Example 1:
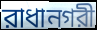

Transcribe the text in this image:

রাধানগরী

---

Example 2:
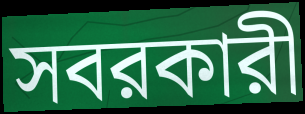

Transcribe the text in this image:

সবরকারী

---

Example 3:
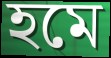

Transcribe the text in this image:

হমে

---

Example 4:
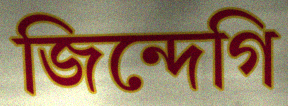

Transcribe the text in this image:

জিন্দেগি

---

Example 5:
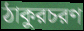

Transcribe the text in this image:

ঠাকুরচরণ